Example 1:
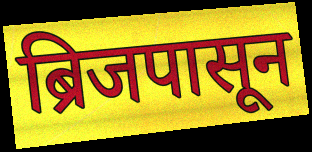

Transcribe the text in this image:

ब्रिजपासून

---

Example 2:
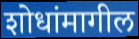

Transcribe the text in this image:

शोधांमागील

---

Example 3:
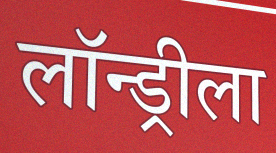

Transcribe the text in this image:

लॉन्ड्रीला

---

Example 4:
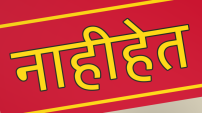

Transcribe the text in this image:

नाहीहेत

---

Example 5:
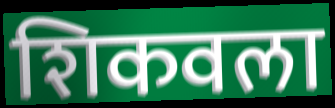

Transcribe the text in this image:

शिकवला